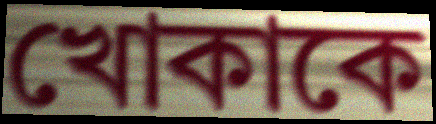
খোকাকে